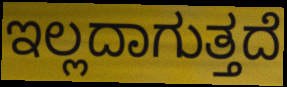
ಇಲ್ಲದಾಗುತ್ತದೆ